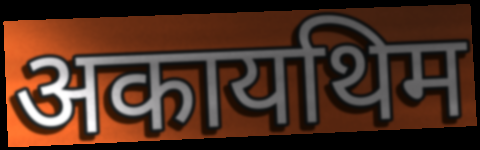
अकायथिम